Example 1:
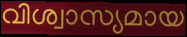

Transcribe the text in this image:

വിശ്വാസ്യമായ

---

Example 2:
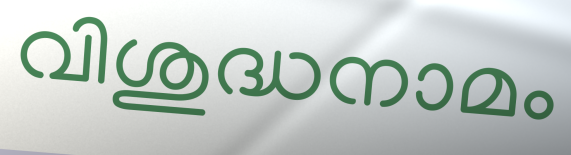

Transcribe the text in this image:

വിശുദ്ധനാമം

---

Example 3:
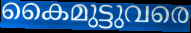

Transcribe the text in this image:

കൈമുട്ടുവരെ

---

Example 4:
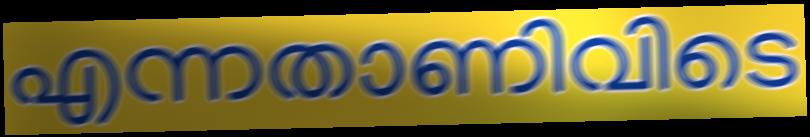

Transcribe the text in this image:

എന്നതാണിവിടെ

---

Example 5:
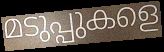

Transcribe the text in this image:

മടുപ്പുകളെ